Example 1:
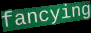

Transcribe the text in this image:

fancying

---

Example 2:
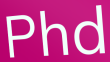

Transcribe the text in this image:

Phd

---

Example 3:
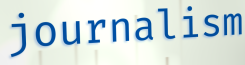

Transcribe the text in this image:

journalism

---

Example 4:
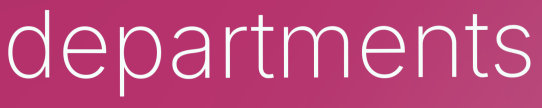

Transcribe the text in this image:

departments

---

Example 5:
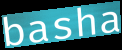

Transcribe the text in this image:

basha